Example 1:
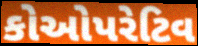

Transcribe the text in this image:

કોઓપરેટિવ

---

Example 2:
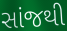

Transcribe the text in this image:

સાંજથી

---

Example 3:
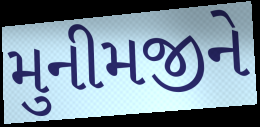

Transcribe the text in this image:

મુનીમજીને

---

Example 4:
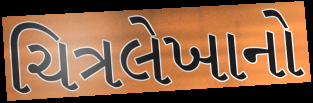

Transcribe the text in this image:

ચિત્રલેખાનો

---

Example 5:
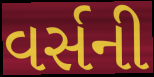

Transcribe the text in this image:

વર્સની